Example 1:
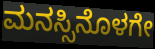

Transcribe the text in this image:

ಮನಸ್ಸಿನೊಳಗೇ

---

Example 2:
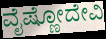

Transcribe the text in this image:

ವೈಷ್ಣೋದೇವಿ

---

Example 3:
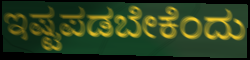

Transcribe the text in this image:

ಇಷ್ಟಪಡಬೇಕೆಂದು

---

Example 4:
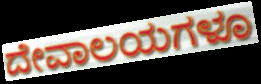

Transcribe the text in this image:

ದೇವಾಲಯಗಳೂ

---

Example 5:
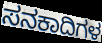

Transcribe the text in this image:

ಸನಕಾದಿಗಳ